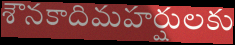
శౌనకాదిమహర్షులకు